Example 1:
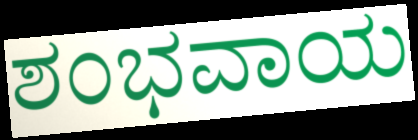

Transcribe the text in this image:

ಶಂಭವಾಯ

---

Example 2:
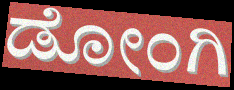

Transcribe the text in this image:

ಡೋಂಗಿ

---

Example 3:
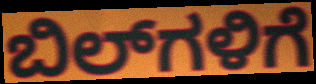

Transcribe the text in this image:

ಬಿಲ್‌ಗಳಿಗೆ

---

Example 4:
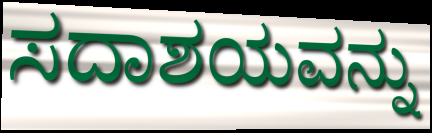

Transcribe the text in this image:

ಸದಾಶಯವನ್ನು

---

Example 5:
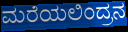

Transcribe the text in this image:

ಮರೆಯಲಿಂದ್ರನ